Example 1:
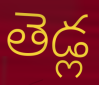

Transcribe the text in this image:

తెడ్ల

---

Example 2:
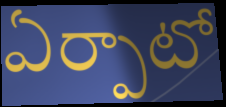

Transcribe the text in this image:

ఏర్పాటో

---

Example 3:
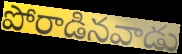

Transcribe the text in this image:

పోరాడినవాడు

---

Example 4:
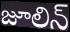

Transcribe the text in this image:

జూలిన్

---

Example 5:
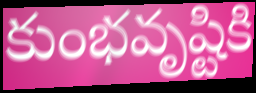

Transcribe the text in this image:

కుంభవృష్టికి